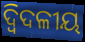
ଦ୍ବିଦଳୀୟ